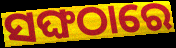
ସଙ୍ଘଠାରେ